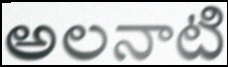
అలనాటి